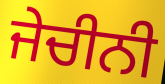
ਜੇਚੀਨੀ